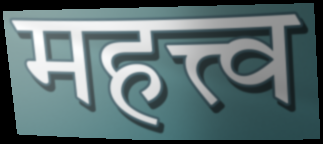
महत्त्व